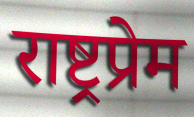
राष्ट्रप्रेम